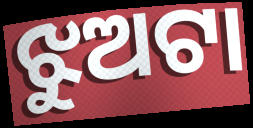
ଝୁଅଟା